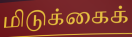
மிடுக்கைக்